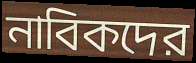
নাবিকদের